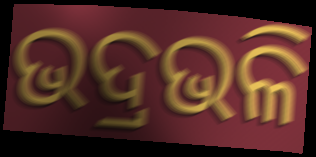
ଭଦ୍ରଭଳି